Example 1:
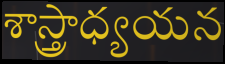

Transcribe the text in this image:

శాస్త్రాధ్యయన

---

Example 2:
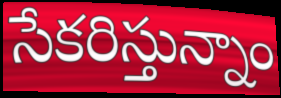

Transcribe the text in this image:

సేకరిస్తున్నాం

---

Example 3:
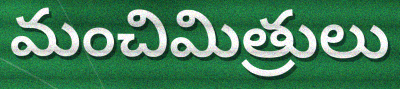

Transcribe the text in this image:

మంచిమిత్రులు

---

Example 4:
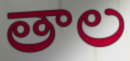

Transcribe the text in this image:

తాల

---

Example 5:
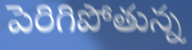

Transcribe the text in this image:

పెరిగిపోతున్న